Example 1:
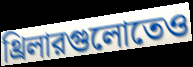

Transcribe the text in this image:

থ্রিলারগুলোতেও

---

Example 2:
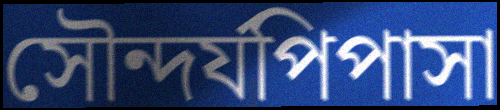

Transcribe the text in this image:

সৌন্দর্যপিপাসা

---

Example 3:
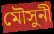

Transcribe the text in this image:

মৌসুনী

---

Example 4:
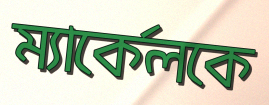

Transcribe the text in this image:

ম্যার্কেলকে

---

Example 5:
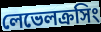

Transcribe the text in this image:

লেভেলক্রসিং